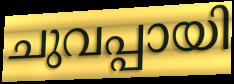
ചുവപ്പായി